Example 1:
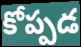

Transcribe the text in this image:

కోప్పడ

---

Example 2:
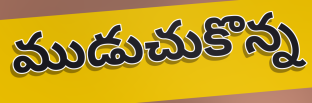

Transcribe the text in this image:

ముడుచుకొన్న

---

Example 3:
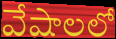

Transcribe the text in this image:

వేషాలలో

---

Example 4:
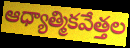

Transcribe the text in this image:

ఆధ్యాత్మికవేత్తల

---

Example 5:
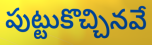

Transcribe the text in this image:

పుట్టుకొచ్చినవే